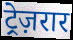
ट्रेज़रार